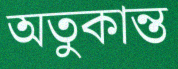
অতুকান্ত